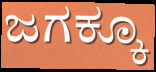
ಜಗಕ್ಕೂ